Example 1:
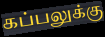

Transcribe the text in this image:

கப்பலுக்கு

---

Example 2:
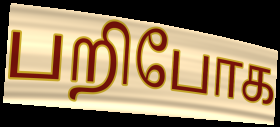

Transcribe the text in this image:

பறிபோக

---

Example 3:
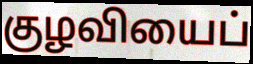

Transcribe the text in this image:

குழவியைப்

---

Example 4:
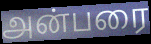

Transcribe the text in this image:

அன்பரை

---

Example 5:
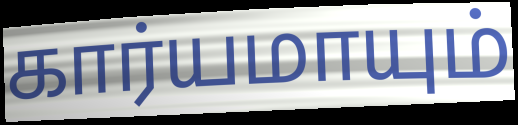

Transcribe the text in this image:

கார்யமாயும்